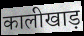
कालीखाड़